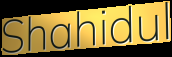
Shahidul